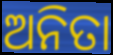
ଅନିତା